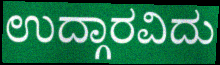
ಉದ್ಗಾರವಿದು